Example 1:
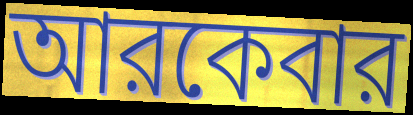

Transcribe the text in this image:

আরকেবার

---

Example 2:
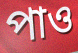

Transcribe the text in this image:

পাও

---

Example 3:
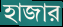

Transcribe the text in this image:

হাজার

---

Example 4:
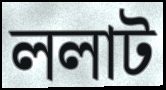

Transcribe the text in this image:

ললাট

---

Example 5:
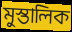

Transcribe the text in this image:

মুস্তালিক